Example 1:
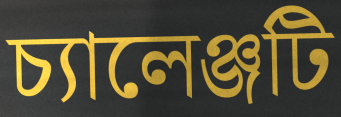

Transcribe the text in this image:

চ্যালেঞ্জটি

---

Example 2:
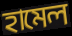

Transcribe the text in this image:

হামেল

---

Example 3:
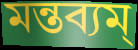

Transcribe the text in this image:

মন্তব্যম্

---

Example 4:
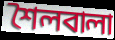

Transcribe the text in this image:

শৈলবালা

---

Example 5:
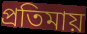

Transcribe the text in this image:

প্রতিমায়